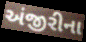
અંજીરીના